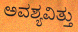
ಅವಶ್ಯವಿತ್ತು